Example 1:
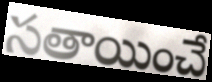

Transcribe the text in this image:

సతాయించే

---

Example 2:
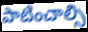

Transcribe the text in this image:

పాటించాల్సి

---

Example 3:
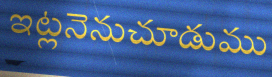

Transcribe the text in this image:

ఇట్లనెనుచూడుము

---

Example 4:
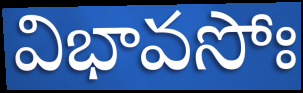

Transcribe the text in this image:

విభావసోః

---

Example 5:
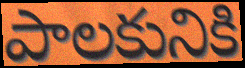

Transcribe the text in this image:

పాలకునికి